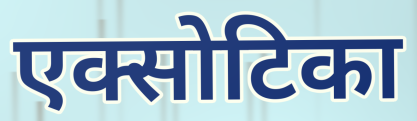
एक्सोटिका